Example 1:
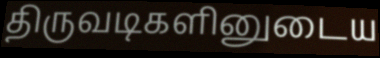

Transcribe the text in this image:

திருவடிகளினுடைய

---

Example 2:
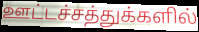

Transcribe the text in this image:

ஊட்டச்சத்துக்களில்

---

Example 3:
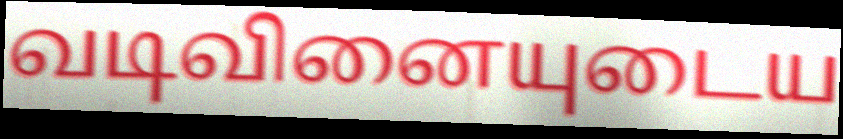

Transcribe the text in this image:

வடிவினையுடைய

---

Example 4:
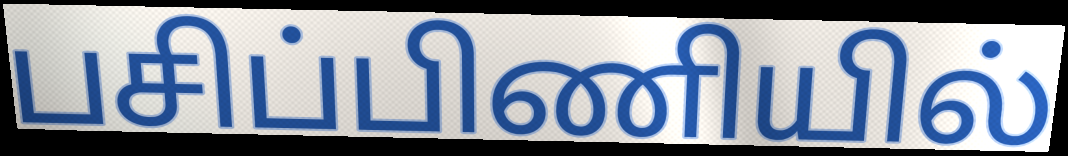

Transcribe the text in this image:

பசிப்பிணியில்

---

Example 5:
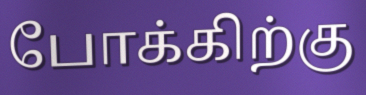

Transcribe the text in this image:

போக்கிற்கு